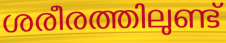
ശരീരത്തിലുണ്ട്